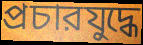
প্রচারযুদ্ধে